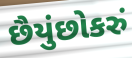
છૈયુંછોકરું